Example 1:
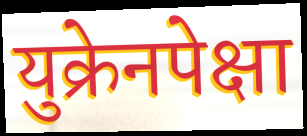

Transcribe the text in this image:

युक्रेनपेक्षा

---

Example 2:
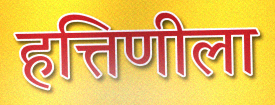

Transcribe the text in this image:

हत्तिणीला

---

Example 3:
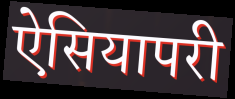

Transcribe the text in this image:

ऐसियापरी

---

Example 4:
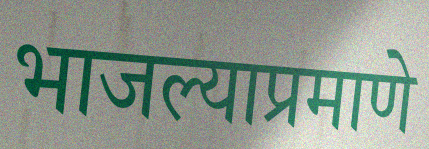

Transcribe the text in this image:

भाजल्याप्रमाणे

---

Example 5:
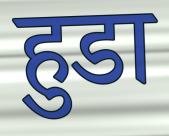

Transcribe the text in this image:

हुडा